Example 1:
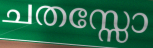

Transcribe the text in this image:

ചതസ്സോ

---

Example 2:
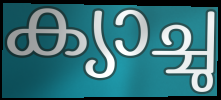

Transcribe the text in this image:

ക്യാച്ചു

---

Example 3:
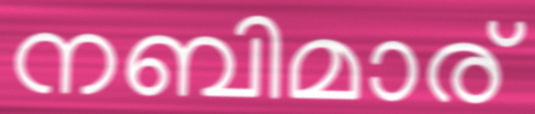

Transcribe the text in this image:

നബിമാര്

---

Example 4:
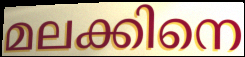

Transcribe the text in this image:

മലക്കിനെ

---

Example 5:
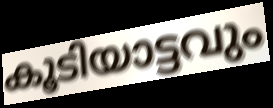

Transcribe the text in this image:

കൂടിയാട്ടവും